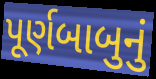
પૂર્ણબાબુનું